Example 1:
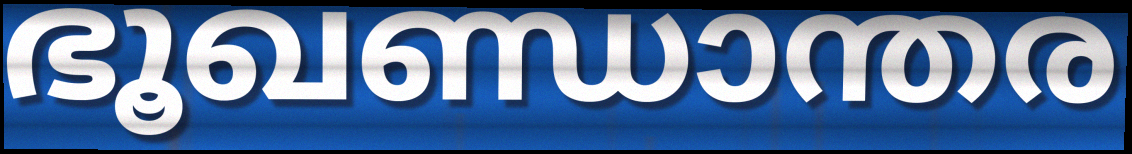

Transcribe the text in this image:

ഭൂഖണ്ഡാന്തര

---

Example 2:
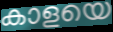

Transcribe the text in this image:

കാളയെ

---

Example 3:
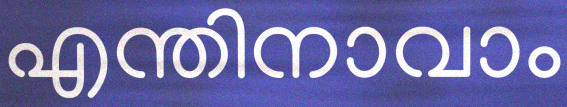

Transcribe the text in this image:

എന്തിനാവാം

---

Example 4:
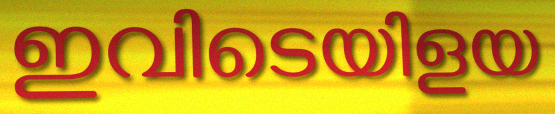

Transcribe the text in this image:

ഇവിടെയിളയ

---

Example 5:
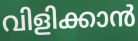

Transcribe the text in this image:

വിളിക്കാൻ